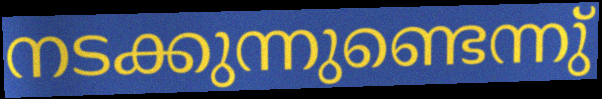
നടക്കുന്നുണ്ടെന്നു്